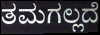
ತಮಗಲ್ಲದೆ